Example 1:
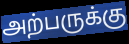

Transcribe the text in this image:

அற்பருக்கு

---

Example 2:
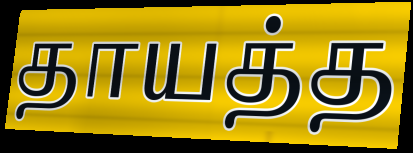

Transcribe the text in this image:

தாயத்த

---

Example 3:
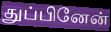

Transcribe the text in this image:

துப்பினேன்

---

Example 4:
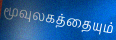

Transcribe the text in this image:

மூவுலகத்தையும்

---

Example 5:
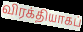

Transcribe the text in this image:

விரக்தியாகப்